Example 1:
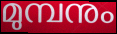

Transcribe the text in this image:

മുമ്പനും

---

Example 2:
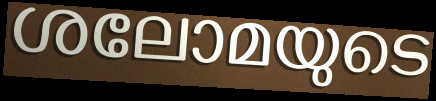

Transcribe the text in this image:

ശലോമയുടെ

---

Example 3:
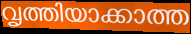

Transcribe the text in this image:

വൃത്തിയാക്കാത്ത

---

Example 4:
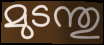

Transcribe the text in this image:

മുടന്തു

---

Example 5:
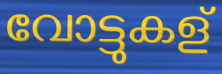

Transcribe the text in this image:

വോട്ടുകള്